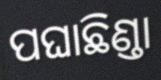
ପଘାଛିଣ୍ଡା